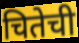
चितेची